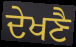
ਦੇਖਣੈ